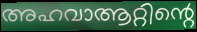
അഹവാആറ്റിന്റെ